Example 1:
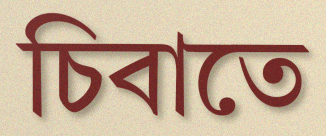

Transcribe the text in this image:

চিবাতে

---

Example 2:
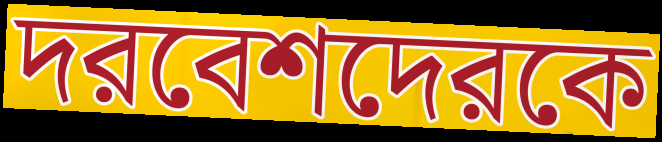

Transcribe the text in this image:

দরবেশদেরকে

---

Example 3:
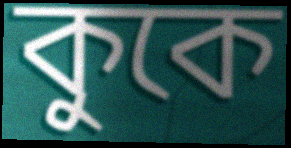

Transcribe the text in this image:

কুকে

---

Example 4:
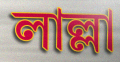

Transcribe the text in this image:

লাল্লা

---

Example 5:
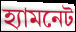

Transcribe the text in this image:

হ্যামনেট